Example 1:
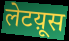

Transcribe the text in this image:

लेटय़ूस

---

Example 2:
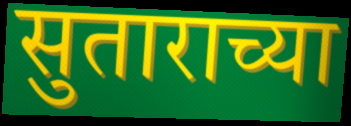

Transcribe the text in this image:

सुताराच्या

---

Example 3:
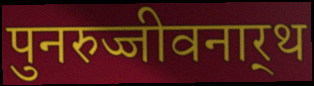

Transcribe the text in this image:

पुनरुज्जीवनार्थ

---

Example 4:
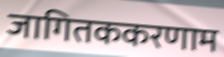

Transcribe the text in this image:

जागितककरणाम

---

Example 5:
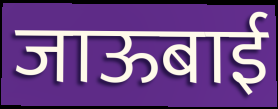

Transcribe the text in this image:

जाऊबाई